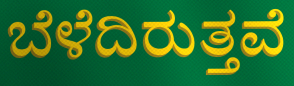
ಬೆಳೆದಿರುತ್ತವೆ